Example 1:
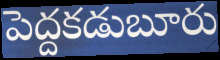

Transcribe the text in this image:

పెద్దకడుబూరు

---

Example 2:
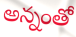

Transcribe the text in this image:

అన్నంతో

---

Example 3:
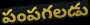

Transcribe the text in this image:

పంపగలడు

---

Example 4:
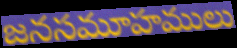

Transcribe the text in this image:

జనసమూహములు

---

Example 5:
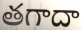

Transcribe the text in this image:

తగాదా